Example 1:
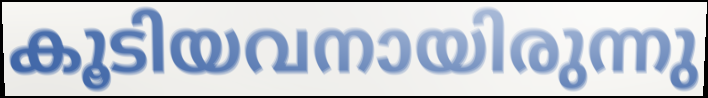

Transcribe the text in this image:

കൂടിയവനായിരുന്നു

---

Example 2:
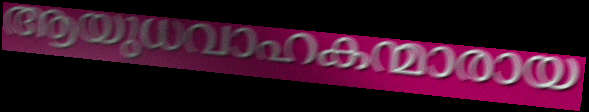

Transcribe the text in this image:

ആയുധവാഹകന്മാരായ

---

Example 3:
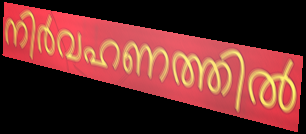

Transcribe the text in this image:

നിർവഹണത്തിൽ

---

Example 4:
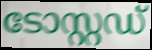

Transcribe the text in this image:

ടോസ്റ്റഡ്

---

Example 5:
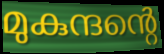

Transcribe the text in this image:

മുകുന്ദന്റെ